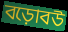
বড়োবউ